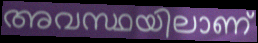
അവസ്ഥയിലാണ്